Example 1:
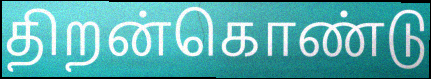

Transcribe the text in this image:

திறன்கொண்டு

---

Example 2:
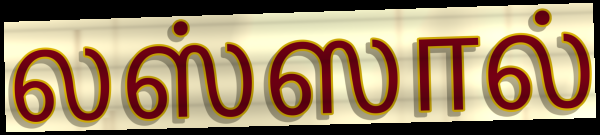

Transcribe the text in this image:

லஸ்ஸால்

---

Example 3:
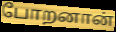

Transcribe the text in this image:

போறனான்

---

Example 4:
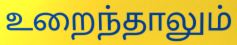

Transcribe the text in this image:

உறைந்தாலும்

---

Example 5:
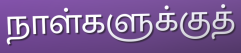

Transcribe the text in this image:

நாள்களுக்குத்